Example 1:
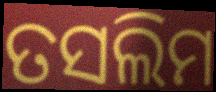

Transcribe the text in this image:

ତସଲିମ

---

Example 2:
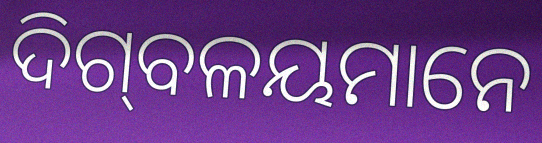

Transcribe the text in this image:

ଦିଗ୍‌ବଳୟମାନେ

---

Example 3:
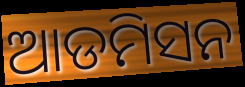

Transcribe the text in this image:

ଆଡମିସନ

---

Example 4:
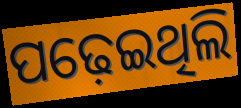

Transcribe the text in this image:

ପଢ଼େଇଥିଲି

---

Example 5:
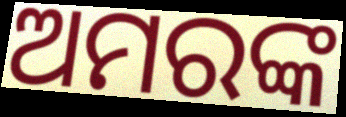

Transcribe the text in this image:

ଅମରଙ୍କ